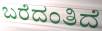
ಬರೆದಂತಿದೆ